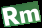
Rm